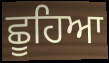
ਛੂਹਿਆ